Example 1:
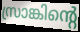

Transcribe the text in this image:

സ്രാങ്കിന്റെ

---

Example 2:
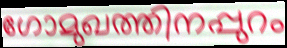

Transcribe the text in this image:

ഗോമുഖത്തിനപ്പുറം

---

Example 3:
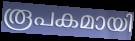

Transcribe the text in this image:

രൂപകമായി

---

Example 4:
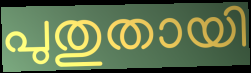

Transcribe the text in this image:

പുതുതായി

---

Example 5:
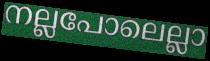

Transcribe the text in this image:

നല്ലപോലെല്ലാ